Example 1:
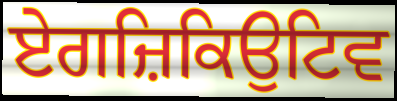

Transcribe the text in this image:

ਏਗਜ਼ਿਕਿਉਟਿਵ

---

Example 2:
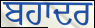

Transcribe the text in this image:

ਬਹਾਦਰ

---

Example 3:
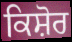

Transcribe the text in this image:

ਕਿਸ਼ੋਰ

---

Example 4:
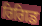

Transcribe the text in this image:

ਰਿਗਿਡ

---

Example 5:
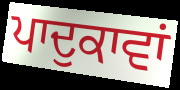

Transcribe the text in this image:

ਪਾਦੁਕਾਵਾਂ